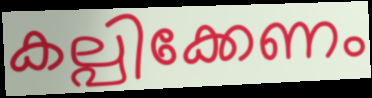
കല്പിക്കേണം